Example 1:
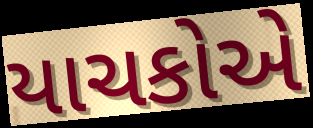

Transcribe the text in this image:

યાચકોએ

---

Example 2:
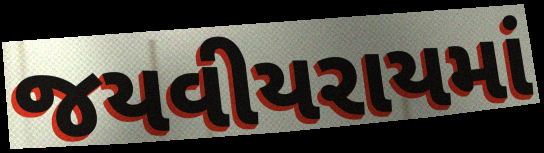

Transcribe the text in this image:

જયવીયરાયમાં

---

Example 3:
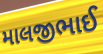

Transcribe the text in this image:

માલજીભાઈ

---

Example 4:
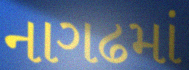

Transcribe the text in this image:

નાગઢમાં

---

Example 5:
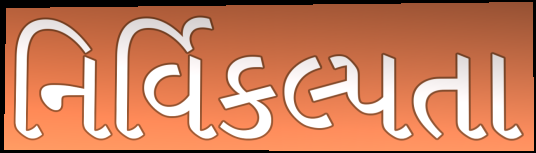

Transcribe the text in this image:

નિર્વિકલ્પતા